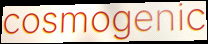
cosmogenic